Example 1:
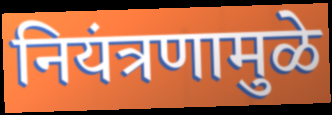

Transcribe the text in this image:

नियंत्रणामुळे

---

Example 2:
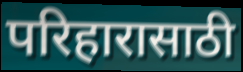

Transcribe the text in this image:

परिहारासाठी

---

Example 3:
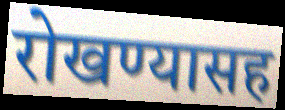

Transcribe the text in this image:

रोखण्यासह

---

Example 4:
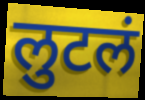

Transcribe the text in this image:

लुटलं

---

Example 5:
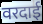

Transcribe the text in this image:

वरदाई